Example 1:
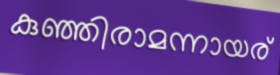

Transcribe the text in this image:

കുഞ്ഞിരാമന്നായര്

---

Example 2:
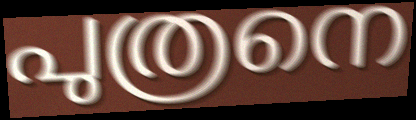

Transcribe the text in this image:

പുത്രനെ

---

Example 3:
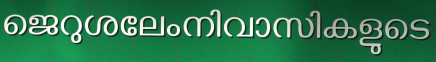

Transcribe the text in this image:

ജെറുശലേംനിവാസികളുടെ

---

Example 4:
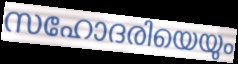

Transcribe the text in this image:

സഹോദരിയെയും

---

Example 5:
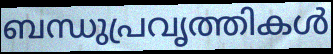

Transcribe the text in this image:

ബന്ധുപ്രവൃത്തികൾ